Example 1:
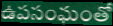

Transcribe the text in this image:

ఉపసంఘంతో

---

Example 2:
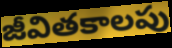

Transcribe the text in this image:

జీవితకాలపు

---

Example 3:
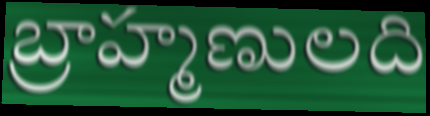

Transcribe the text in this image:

బ్రాహ్మణులది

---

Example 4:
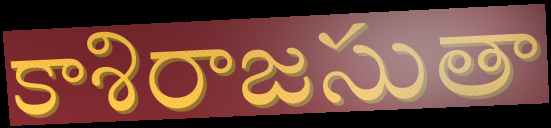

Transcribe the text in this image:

కాశిరాజసుతా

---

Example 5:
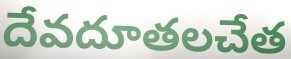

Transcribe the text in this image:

దేవదూతలచేత